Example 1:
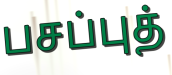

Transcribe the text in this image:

பசப்புத்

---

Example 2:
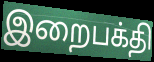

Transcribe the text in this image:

இறைபக்தி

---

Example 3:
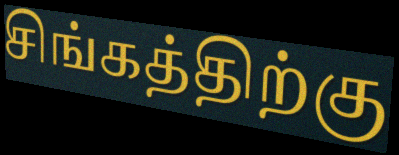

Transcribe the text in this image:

சிங்கத்திற்கு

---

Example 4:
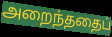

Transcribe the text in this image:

அறைந்ததைப்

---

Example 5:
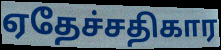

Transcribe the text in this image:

ஏதேச்சதிகார